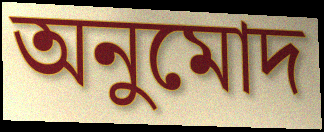
অনুমোদ